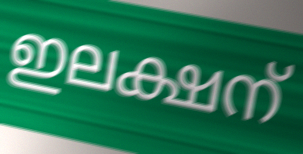
ഇലക്ഷന്